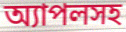
অ্যাপলসহ